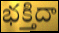
భక్తిదా